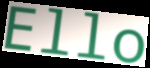
Ello